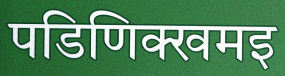
पडिणिक्खमइ